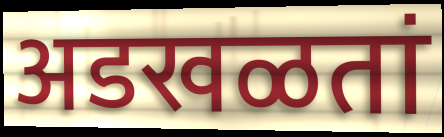
अडखळतां